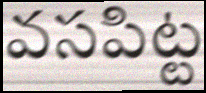
వసపిట్ట